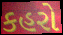
કહરો